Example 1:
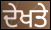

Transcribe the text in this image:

ਦੇਖਤੇ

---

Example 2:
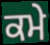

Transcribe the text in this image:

ਕਮੇ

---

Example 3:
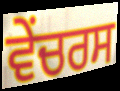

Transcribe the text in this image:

ਵੇਂਚਰਸ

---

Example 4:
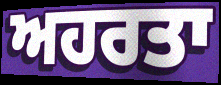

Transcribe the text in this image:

ਅਹਰਤਾ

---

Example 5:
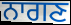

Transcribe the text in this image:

ਨਾਗਣ